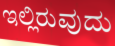
ಇಲ್ಲಿರುವುದು